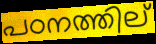
പഠനത്തില്